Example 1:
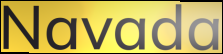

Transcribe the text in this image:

Navada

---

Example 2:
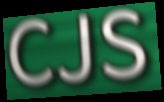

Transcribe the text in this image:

CJS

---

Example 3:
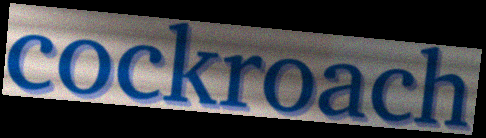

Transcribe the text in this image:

cockroach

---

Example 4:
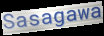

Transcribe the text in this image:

Sasagawa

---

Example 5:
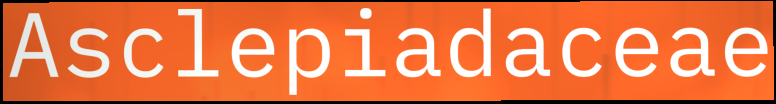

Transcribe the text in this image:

Asclepiadaceae